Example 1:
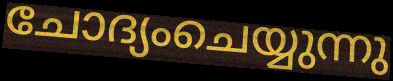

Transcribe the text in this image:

ചോദ്യംചെയ്യുന്നു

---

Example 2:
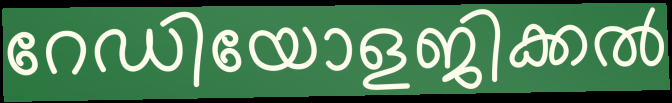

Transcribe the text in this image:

റേഡിയോളജിക്കൽ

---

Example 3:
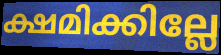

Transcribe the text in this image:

ക്ഷമിക്കില്ലേ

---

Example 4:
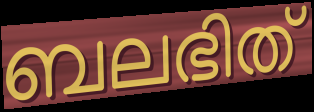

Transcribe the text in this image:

ബലഭിത്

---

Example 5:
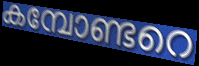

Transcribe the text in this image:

കമ്പോണ്ടറെ